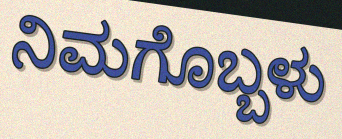
ನಿಮಗೊಬ್ಬಳು